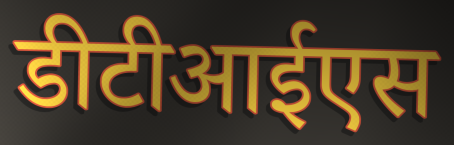
डीटीआईएस